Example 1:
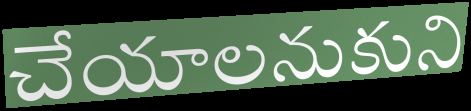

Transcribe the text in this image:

చేయాలనుకుని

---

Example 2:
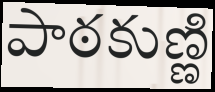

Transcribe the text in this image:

పాఠకుణ్ణి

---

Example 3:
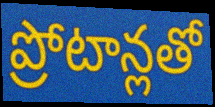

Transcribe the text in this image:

ప్రోటాన్లతో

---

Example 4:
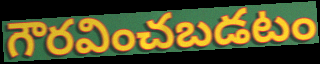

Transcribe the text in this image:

గౌరవించబడటం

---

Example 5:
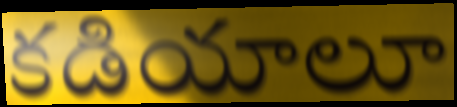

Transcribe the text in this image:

కడియాలూ